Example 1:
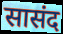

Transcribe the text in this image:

सासंद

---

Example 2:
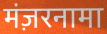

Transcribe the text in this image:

मंज़रनामा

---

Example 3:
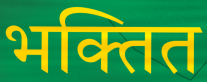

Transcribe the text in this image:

भक्तित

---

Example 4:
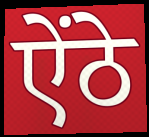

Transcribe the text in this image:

ऐंठे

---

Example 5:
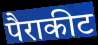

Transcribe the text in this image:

पैराकीट